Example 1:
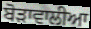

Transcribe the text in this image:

ਬੋੜਾਵਾਲੀਆ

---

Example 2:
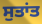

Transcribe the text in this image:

ਸੁਤਾਂਤ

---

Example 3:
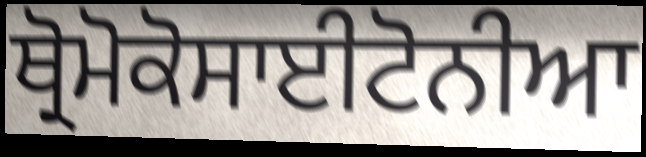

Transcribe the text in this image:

ਥ੍ਰੋਮੋਕੋਸਾਈਟੋਨੀਆ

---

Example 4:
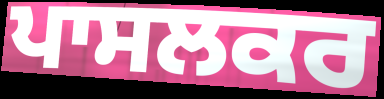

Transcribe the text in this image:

ਪਾਸਲਕਰ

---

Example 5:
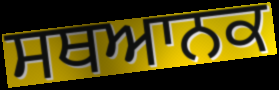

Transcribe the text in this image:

ਸਥਆਨਕ